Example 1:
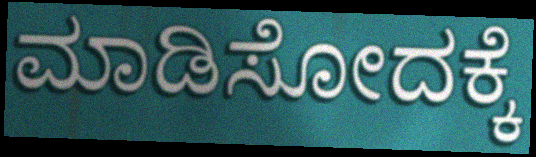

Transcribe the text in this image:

ಮಾಡಿಸೋದಕ್ಕೆ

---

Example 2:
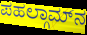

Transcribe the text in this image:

ಪಹಲ್ಗಾಮ್‌ನ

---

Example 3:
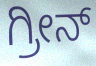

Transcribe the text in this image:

ಗ್ರೀನ್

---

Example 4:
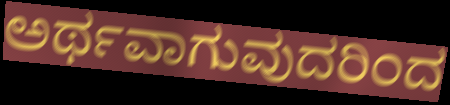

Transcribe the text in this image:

ಅರ್ಥವಾಗುವುದರಿಂದ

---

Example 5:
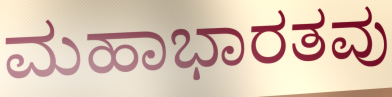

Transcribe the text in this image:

ಮಹಾಭಾರತವು